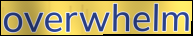
overwhelm